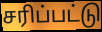
சரிப்பட்டு